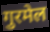
गुरमेल